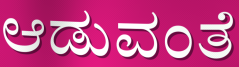
ಆಡುವಂತೆ